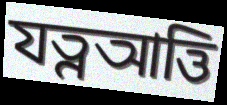
যত্নআত্তি